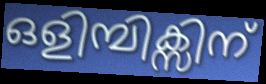
ഒളിമ്പിക്സിന്